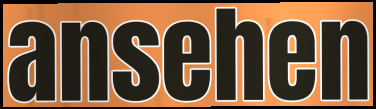
ansehen